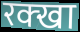
रक्‍खा